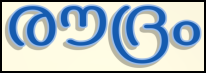
രൗദ്രം